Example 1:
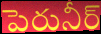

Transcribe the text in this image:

పెరునీర్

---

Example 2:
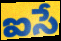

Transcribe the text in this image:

ఐసే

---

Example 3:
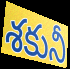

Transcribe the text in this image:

శకునీ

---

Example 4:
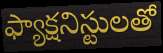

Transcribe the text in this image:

ఫ్యాక్షనిస్టులతో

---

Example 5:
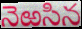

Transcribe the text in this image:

నెఱసిన